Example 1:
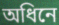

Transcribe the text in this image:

অধিনে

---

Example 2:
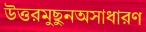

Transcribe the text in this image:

উত্তরমুছুনঅসাধারণ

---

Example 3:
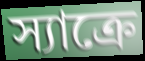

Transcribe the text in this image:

স্যাক্রে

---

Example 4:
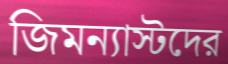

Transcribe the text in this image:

জিমন্যাস্টদের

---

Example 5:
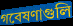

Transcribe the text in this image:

গবেষণাগুলি